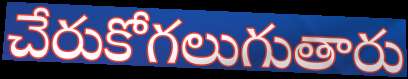
చేరుకోగలుగుతారు